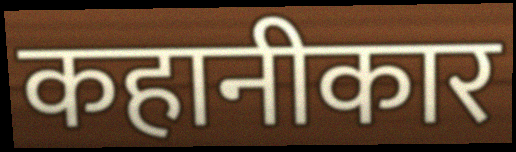
कहानीकार